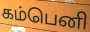
கம்பெனி